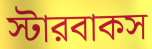
স্টারবাকস